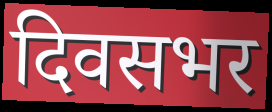
दिवसभर